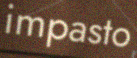
impasto